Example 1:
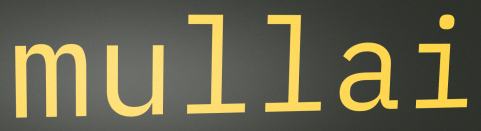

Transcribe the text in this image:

mullai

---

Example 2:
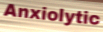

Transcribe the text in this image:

Anxiolytic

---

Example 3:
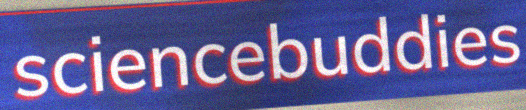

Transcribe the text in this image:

sciencebuddies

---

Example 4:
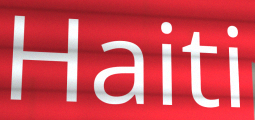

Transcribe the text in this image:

Haiti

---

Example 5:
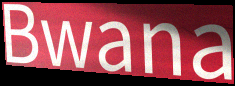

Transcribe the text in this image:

Bwana